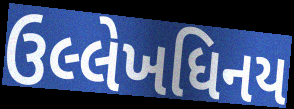
ઉલ્લેખધિનય